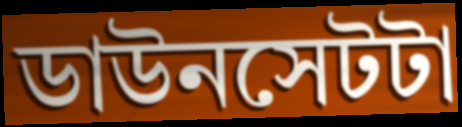
ডাউনসেটটা